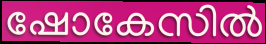
ഷോകേസിൽ